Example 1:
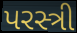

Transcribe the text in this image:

પરસ્ત્રી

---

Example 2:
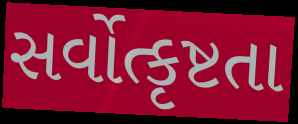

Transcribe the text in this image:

સર્વોત્કૃષ્ટતા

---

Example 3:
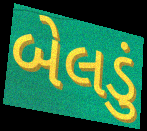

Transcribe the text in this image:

બેલડું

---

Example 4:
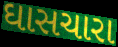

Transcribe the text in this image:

ઘાસચારા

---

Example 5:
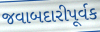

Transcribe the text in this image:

જવાબદારીપૂર્વક